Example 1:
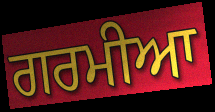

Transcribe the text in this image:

ਗਰਮੀਆ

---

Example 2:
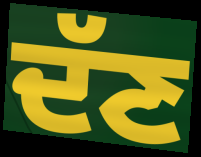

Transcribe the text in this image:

ਦੱਣ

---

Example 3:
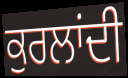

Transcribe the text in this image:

ਕੁਰਲਾਂਦੀ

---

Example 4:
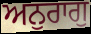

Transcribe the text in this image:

ਅਨੁਰਾਗੁ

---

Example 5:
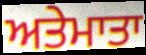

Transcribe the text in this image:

ਅਤੇਮਾਤਾ